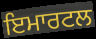
ਇਮਾਰਟਲ